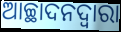
ଆଚ୍ଛାଦନଦ୍ୱାରା